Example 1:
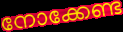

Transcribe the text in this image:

നോക്കേണ്ട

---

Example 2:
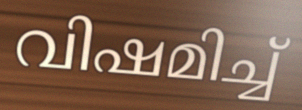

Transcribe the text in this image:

വിഷമിച്ച്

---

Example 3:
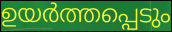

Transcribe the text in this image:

ഉയർത്തപ്പെടും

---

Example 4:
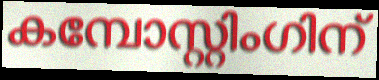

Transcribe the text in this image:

കമ്പോസ്റ്റിംഗിന്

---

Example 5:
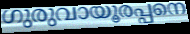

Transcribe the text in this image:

ഗുരുവായൂരപ്പനെ